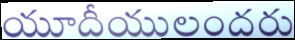
యూదీయులందరు